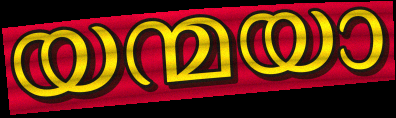
യന്മയാ